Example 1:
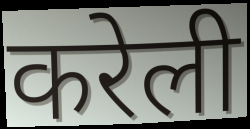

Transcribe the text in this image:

करेली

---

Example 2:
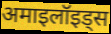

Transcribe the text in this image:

अमाइलॉइड्स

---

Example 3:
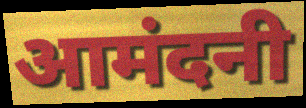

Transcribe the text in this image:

आमंदनी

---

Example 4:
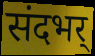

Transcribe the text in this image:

संदभर्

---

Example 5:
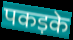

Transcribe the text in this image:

पकड़के